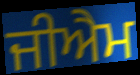
ਜੀਐਮ